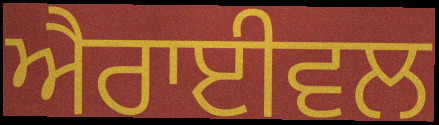
ਐਰਾਈਵਲ